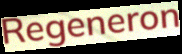
Regeneron